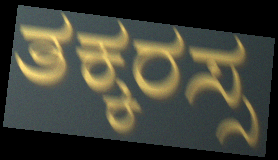
ತಕ್ಕರಸ್ಸ